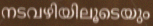
നടവഴിയിലൂടെയും